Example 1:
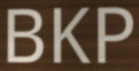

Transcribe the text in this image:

BKP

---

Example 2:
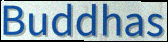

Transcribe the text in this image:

Buddhas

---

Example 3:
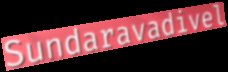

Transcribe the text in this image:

Sundaravadivel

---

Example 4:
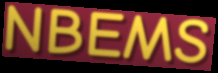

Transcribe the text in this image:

NBEMS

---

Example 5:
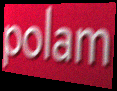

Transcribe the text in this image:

polam